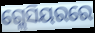
ଗ୍ଲେସିୟରରେ